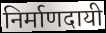
निर्माणदायी